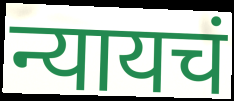
न्यायचं